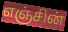
எஞ்சின்